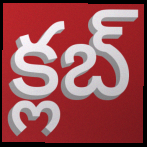
క్లబ్